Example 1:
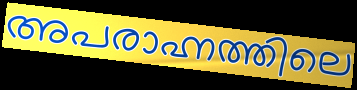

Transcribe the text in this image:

അപരാഹ്നത്തിലെ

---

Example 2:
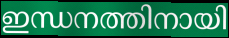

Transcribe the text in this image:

ഇന്ധനത്തിനായി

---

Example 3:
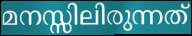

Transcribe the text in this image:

മനസ്സിലിരുന്നത്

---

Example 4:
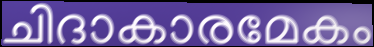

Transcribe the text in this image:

ചിദാകാരമേകം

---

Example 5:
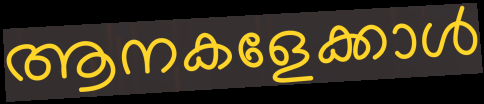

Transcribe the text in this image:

ആനകളേക്കാൾ